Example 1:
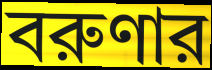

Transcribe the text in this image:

বরুণার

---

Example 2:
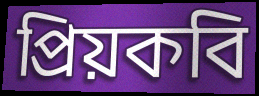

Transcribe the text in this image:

প্রিয়কবি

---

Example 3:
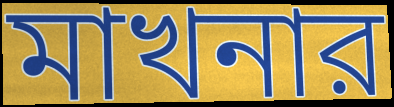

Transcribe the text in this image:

মাখনার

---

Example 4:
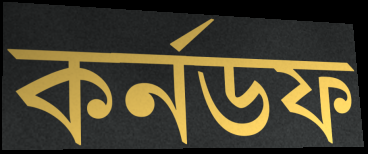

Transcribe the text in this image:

কর্নডফ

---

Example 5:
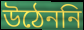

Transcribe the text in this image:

উঠেননি